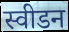
स्वीडन